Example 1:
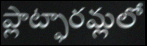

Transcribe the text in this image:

ప్లాట్ఫారమ్లలో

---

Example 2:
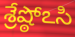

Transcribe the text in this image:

శ్రేష్ఠోఽసి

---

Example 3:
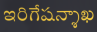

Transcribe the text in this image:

ఇరిగేషన్శాఖ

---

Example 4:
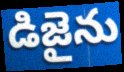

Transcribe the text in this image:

డిజైను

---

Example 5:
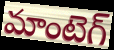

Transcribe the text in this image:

మాంటెగ్